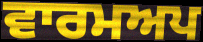
ਵਾਰਮਅਪ